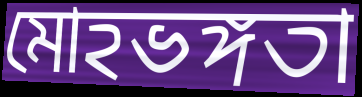
মোহভঙ্গতা